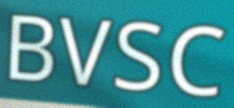
BVSC